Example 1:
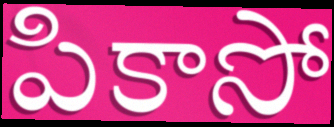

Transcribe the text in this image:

పికాసో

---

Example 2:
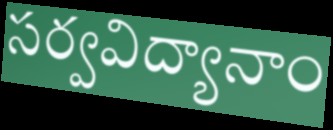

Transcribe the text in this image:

సర్వవిద్యానాం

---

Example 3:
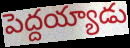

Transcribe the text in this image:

పెద్దయ్యాడు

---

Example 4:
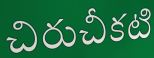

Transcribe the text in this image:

చిరుచీకటి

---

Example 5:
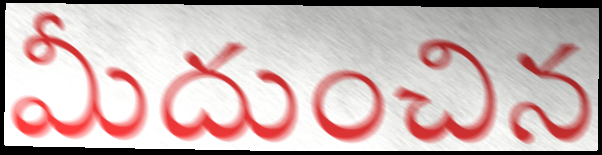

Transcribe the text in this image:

మీదుంచిన